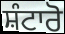
ਸ਼ੰਟਾਰੋ